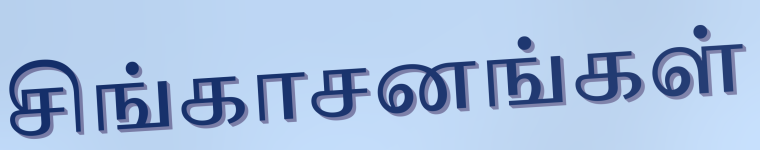
சிங்காசனங்கள்